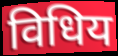
विधिय